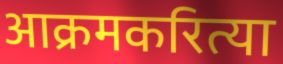
आक्रमकरित्या